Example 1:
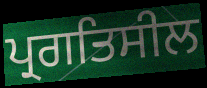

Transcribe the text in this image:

ਪ੍ਰਗਤਿਸੀਲ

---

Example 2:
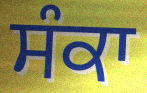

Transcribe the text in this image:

ਸੰਕਾ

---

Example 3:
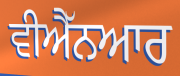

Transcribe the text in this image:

ਵੀਐੱਨਆਰ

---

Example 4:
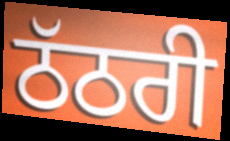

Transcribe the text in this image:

ਠੱਠਰੀ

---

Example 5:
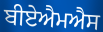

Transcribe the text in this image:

ਬੀਏਐਮਐਸ